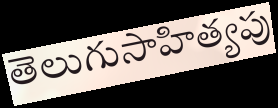
తెలుగుసాహిత్యపు